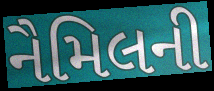
નૈમિલની